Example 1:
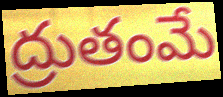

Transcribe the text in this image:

ద్రుతంమే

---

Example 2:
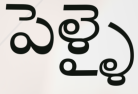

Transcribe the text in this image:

పెళ్ళై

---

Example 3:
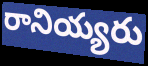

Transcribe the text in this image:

రానియ్యరు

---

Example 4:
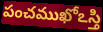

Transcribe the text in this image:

పంచముఖోఽస్తి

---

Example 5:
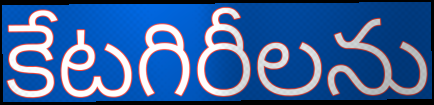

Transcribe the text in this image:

కేటగిరీలను